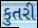
કુતરી